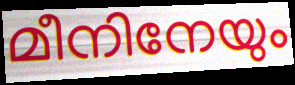
മീനിനേയും